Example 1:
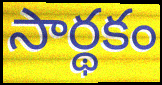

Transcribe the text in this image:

సార్థకం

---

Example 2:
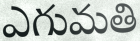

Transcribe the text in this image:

ఎగుమతి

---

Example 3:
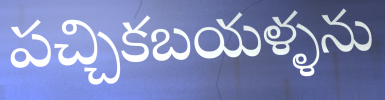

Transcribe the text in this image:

పచ్చికబయళ్ళను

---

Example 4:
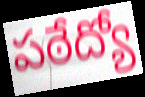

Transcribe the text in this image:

పఠేద్యో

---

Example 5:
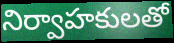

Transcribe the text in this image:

నిర్వాహకులతో